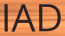
IAD